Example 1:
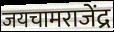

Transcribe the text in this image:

जयचामराजेंद्र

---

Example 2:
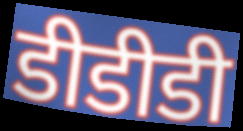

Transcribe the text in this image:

डीडीडी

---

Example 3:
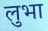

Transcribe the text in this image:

लुभा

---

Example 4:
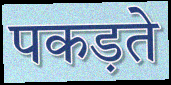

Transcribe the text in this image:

पकड़ते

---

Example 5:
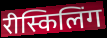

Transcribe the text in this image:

रीस्किलिंग